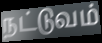
நட்டுவம்